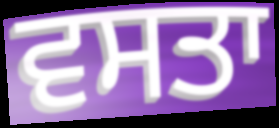
ਵਸਤਾ